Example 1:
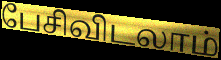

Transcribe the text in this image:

பேசிவிடலாம்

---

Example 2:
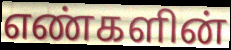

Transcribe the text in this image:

எண்களின்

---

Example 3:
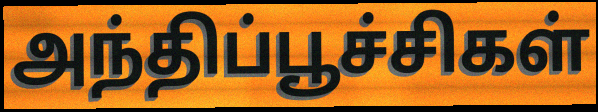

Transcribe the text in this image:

அந்திப்பூச்சிகள்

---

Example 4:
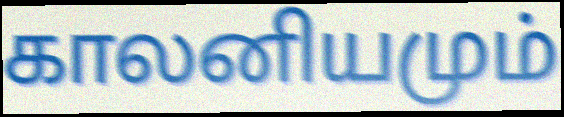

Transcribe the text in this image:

காலனியமும்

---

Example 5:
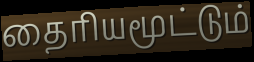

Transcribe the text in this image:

தைரியமூட்டும்